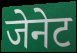
जेनेट